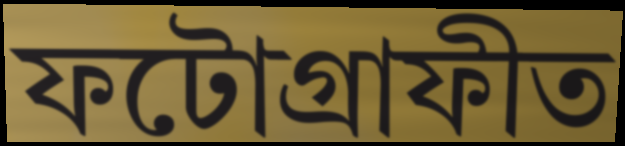
ফটোগ্ৰাফীত